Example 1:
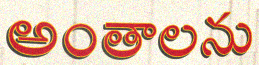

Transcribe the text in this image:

అంతాలను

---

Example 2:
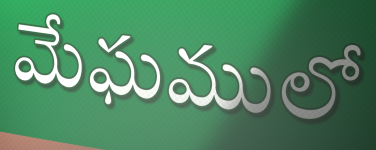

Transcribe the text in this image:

మేఘములో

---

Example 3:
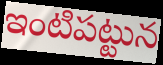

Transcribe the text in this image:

ఇంటిపట్టున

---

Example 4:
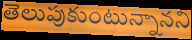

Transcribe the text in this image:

తెలుపుకుంటున్నానని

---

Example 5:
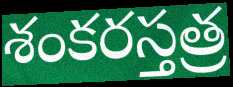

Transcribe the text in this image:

శంకరస్తత్ర